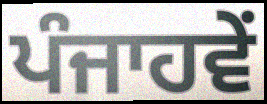
ਪੰਜਾਹਵੇਂ